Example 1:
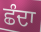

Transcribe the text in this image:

ਛੰਦਾ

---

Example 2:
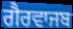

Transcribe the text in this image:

ਗੈਰਵਾਜਬ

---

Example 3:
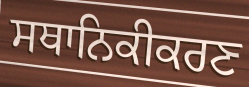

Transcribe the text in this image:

ਸਥਾਨਿਕੀਕਰਣ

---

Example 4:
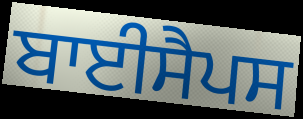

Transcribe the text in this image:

ਬਾਈਸੈਪਸ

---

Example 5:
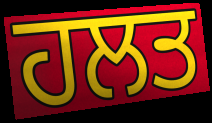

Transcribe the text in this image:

ਹਲਤ